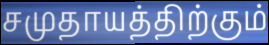
சமுதாயத்திற்கும்